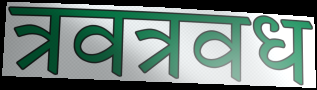
त्रवत्रवध